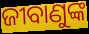
ଜୀବାଣୁଙ୍କ